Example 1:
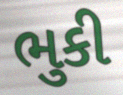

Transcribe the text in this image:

ભુકી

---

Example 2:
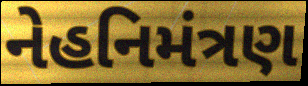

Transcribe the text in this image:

નેહનિમંત્રણ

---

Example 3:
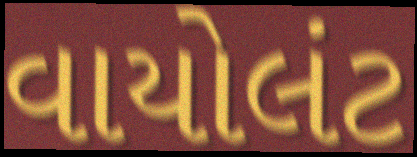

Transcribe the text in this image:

વાયોલંટ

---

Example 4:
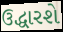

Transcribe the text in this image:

ઉદ્ધારશે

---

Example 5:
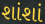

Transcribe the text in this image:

શાંશાં